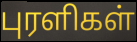
புரளிகள்